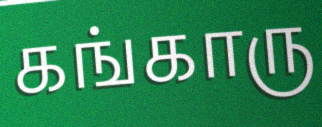
கங்காரு